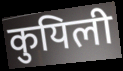
कुयिली